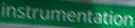
instrumentation